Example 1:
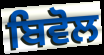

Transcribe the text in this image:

ਬਿਵੋਲ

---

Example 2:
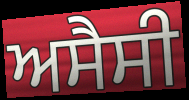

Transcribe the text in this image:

ਅਸੈਸੀ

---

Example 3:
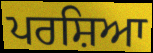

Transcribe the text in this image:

ਪਰਸ਼ਿਆ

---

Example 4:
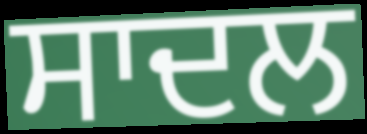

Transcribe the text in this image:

ਸਾਦਲ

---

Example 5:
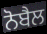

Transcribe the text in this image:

ਨੋਬੈਲ